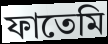
ফাতেমি